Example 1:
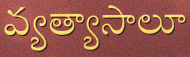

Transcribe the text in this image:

వ్యత్యాసాలూ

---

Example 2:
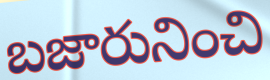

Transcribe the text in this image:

బజారునించి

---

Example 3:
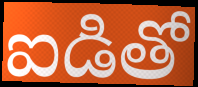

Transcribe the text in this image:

ఐడితో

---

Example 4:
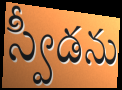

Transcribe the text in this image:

స్వీడను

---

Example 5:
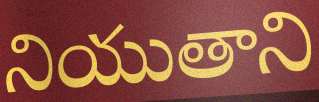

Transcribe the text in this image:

నియుతాని